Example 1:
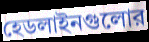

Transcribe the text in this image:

হেডলাইনগুলোর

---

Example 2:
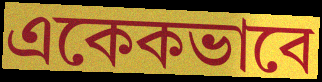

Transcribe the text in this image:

একেকভাবে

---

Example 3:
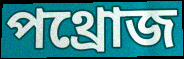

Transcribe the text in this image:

পথ্রোজ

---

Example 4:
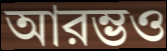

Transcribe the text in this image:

আরম্ভও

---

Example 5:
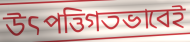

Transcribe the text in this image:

উৎপত্তিগতভাবেই